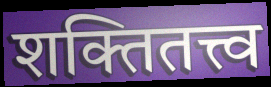
शक्तितत्त्व